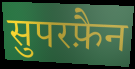
सुपरफ़ैन